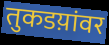
तुकडय़ांवर